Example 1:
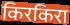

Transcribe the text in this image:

किरकिरा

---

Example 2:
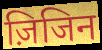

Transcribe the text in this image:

ज़िजिन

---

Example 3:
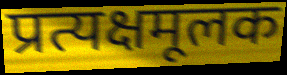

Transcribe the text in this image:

प्रत्यक्षमूलक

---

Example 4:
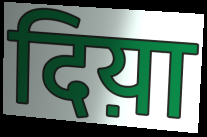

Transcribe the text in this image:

दिय़ा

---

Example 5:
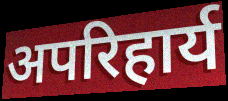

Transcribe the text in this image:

अपरिहार्य